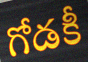
గోడకీ